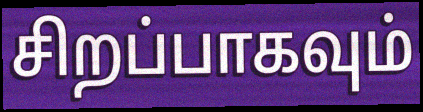
சிறப்பாகவும்